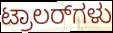
ಟ್ರಾಲರ್‌ಗಳು